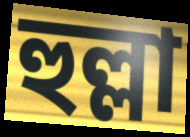
হুল্লা